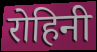
रोहिनी